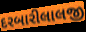
દરબારીલાલજી